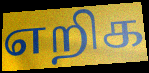
எறிக